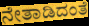
ನೇತಾಡಿದಂತೆ